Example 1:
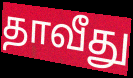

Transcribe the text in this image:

தாவீது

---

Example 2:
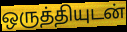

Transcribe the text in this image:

ஒருத்தியுடன்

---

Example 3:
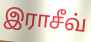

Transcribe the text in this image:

இராசீவ்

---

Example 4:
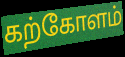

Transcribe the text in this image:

கற்கோளம்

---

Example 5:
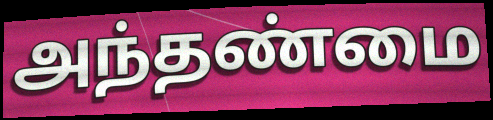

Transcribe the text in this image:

அந்தண்மை